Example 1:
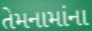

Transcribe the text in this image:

તેમનામાંના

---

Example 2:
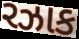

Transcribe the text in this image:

રઝાક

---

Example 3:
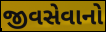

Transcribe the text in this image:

જીવસેવાનો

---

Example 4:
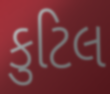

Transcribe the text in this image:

કુટિલ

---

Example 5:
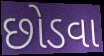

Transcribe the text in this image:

છોડવા